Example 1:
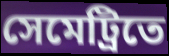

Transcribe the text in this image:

সেমেট্রিতে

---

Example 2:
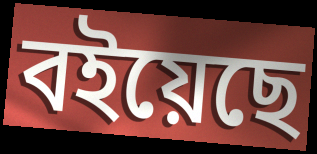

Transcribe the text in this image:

বইয়েছে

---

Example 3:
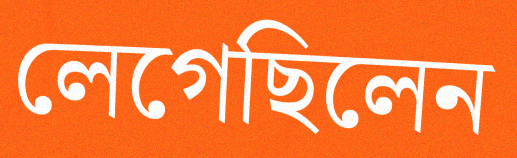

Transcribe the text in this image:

লেগেছিলেন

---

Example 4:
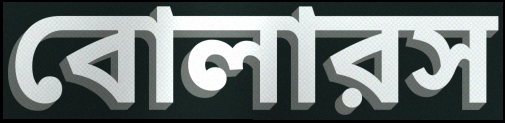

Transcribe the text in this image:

বোলারস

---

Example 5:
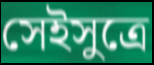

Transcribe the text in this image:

সেইসুত্রে